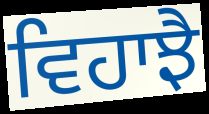
ਵਿਹਾਝੈ